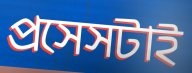
প্রসেসটাই